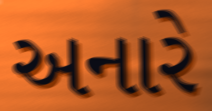
અનારે